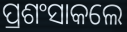
ପ୍ରଶଂସାକଲେ